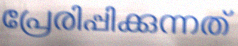
പ്രേരിപ്പിക്കുന്നത്